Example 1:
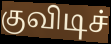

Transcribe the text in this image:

குவிடிச்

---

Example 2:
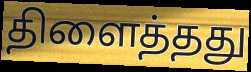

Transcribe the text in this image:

திளைத்தது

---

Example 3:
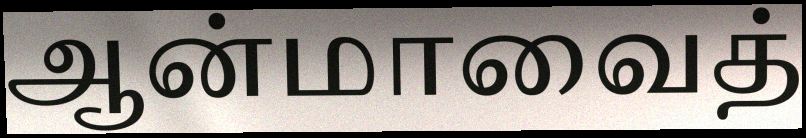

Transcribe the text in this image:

ஆன்மாவைத்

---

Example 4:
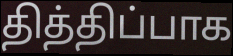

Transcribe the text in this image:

தித்திப்பாக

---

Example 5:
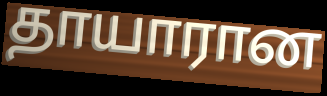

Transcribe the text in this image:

தாயாரான